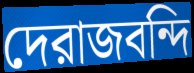
দেরাজবন্দি